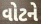
વોટને